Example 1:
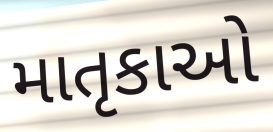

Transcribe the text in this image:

માતૃકાઓ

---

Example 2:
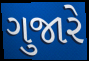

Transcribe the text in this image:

ગુજારે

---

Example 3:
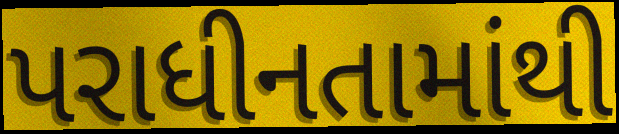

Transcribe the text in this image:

પરાધીનતામાંથી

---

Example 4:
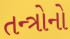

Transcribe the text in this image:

તન્ત્રોનો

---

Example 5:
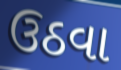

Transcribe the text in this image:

ઉઠવા